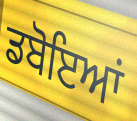
ਡਬੋਇਆਂ